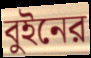
বুইনের